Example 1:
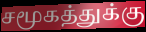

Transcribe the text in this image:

சமூகத்துக்கு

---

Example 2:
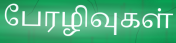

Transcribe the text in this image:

பேரழிவுகள்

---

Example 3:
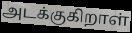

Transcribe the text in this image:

அடக்குகிறாள்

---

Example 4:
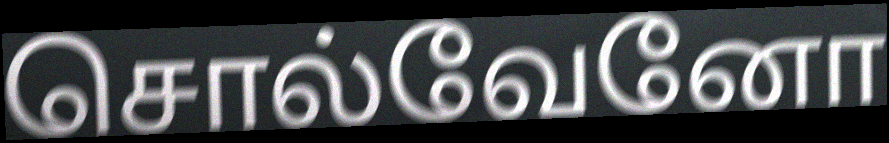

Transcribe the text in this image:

சொல்வேனோ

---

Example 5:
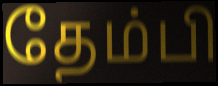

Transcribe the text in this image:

தேம்பி